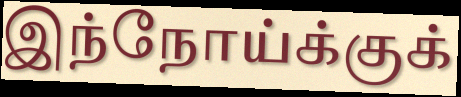
இந்நோய்க்குக்